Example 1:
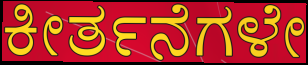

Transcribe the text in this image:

ಕೀರ್ತನೆಗಳೇ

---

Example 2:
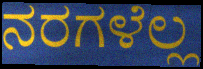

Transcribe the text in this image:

ನರಗಳೆಲ್ಲ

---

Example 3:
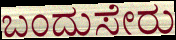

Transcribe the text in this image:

ಬಂದುಸೇರು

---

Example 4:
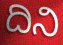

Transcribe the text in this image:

ದಿನಿ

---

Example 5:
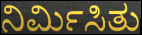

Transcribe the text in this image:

ನಿರ್ಮಿಸಿತು